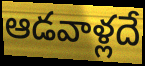
ఆడవాళ్లదే